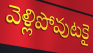
వెళ్లిపోవుటకై